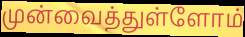
முன்வைத்துள்ளோம்